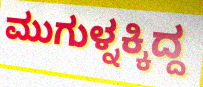
ಮುಗುಳ್ನಕ್ಕಿದ್ದ